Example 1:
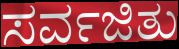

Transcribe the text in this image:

ಸರ್ವಜಿತು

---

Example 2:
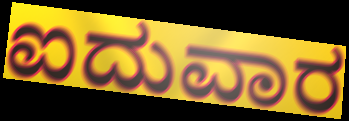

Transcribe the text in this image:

ಐದುವಾರ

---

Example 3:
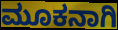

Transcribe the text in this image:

ಮೂಕನಾಗಿ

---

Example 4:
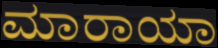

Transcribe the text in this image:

ಮಾರಾಯಾ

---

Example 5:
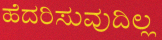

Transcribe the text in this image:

ಹೆದರಿಸುವುದಿಲ್ಲ